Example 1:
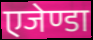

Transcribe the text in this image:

एजेण्डा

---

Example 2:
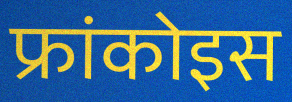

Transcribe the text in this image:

फ्रांकोइस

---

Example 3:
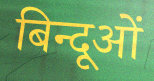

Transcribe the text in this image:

बिन्दूओं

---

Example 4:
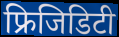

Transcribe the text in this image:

फ्रिजिडिटी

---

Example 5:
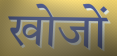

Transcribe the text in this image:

खोजों